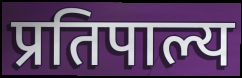
प्रतिपाल्य